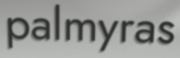
palmyras